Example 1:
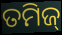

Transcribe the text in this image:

ତମିଜ୍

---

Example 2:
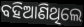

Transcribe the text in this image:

ବହିଆଣିଥିଲେ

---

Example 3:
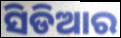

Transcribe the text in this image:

ସିଡିଆର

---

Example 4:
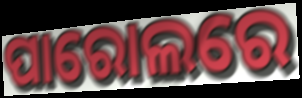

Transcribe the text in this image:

ପାରୋଲରେ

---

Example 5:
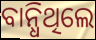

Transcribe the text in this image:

ବାନ୍ଧିଥିଲେ